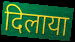
दिलाया